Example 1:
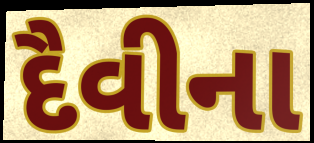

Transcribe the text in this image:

દૈવીના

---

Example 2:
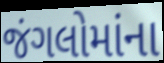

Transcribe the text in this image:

જંગલોમાંના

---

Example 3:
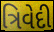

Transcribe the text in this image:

ત્રિવેદી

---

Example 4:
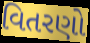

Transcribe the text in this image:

વિતરણો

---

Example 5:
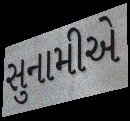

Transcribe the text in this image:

સુનામીએ